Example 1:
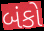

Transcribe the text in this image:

બંકો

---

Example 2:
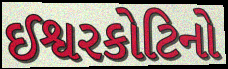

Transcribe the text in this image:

ઈશ્વરકોટિનો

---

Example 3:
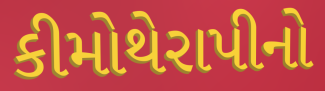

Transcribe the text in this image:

કીમોથેરાપીનો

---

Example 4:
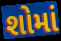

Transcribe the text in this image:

શોમાં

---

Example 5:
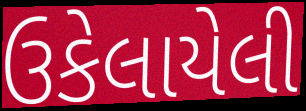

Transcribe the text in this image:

ઉકેલાયેલી